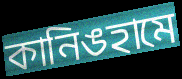
কানিঙহামে